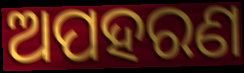
ଅପହରଣ